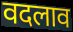
वदलाव